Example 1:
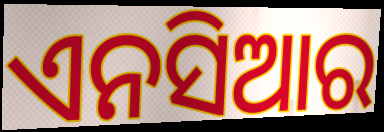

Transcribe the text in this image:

ଏନସିଆର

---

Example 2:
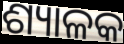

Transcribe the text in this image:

ଶ୍ୟାଳକ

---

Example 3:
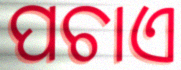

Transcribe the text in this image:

ପଚାଏ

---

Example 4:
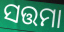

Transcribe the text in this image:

ସତ୍ତମା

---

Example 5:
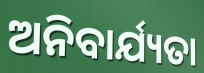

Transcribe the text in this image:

ଅନିବାର୍ଯ୍ୟତା